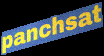
panchsat